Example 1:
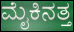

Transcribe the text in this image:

ಮೈಕಿನತ್ತ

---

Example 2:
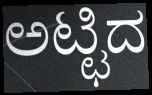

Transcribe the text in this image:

ಅಟ್ಟಿದ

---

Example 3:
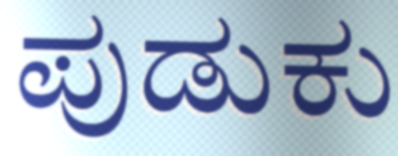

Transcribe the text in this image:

ಪುಡುಕು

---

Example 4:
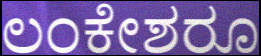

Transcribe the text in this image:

ಲಂಕೇಶರೂ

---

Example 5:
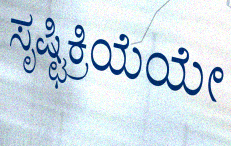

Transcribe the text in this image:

ಸೃಷ್ಟಿಕ್ರಿಯೆಯೇ